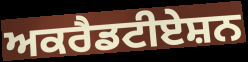
ਅਕਰੈਡਟੀਏਸ਼ਨ